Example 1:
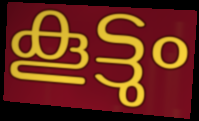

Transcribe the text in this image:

കൂട്ടും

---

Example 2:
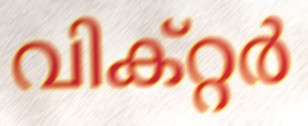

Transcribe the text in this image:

വിക്റ്റർ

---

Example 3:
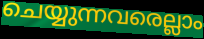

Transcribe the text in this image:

ചെയ്യുന്നവരെല്ലാം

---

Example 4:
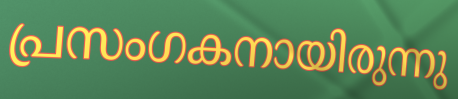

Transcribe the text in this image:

പ്രസംഗകനായിരുന്നു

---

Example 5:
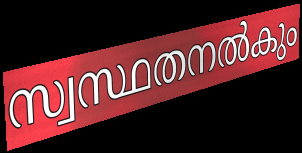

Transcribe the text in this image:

സ്വസ്ഥതനൽകും